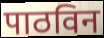
पाठविन